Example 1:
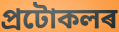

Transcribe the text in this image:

প্ৰটোকলৰ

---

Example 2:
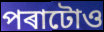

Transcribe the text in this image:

পৰাটোও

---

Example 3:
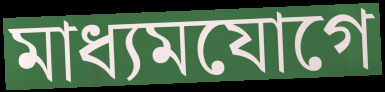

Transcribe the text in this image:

মাধ্যমযোগে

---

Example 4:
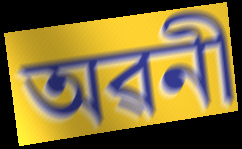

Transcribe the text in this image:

অৱনী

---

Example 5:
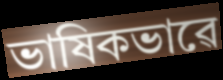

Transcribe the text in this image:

ভাষিকভাৱে